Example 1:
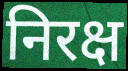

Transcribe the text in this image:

निरक्ष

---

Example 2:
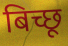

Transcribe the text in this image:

बिच्छू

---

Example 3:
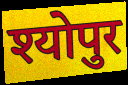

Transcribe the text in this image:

श्योपुर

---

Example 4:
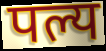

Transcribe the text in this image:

पल्य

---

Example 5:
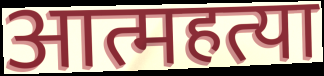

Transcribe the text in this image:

आत्‍महत्‍या